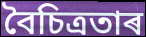
বৈচিত্ৰতাৰ